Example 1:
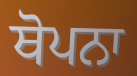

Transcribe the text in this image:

ਥੋਪਨਾ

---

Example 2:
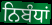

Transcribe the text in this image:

ਨਿਬੰਧਾਂ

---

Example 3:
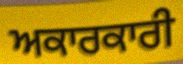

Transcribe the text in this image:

ਅਕਾਰਕਾਰੀ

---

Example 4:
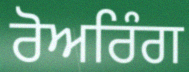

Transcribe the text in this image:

ਰੋਅਰਿੰਗ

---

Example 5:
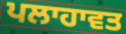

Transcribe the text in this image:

ਪਲਾਹਾਵਤ